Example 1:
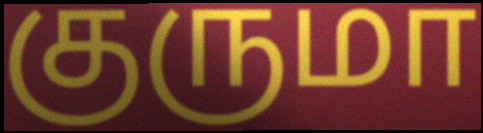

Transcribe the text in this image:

குருமா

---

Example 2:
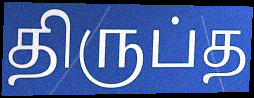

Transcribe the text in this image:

திருப்த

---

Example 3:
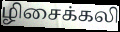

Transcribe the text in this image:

ழிசைக்கலி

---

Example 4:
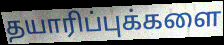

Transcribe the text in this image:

தயாரிப்புக்களை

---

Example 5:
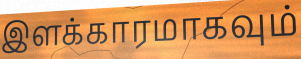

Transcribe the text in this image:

இளக்காரமாகவும்